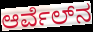
ಆರ್ವೆಲ್‍ನ